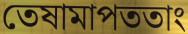
তেষামাপততাং